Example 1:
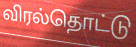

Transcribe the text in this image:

விரல்தொட்டு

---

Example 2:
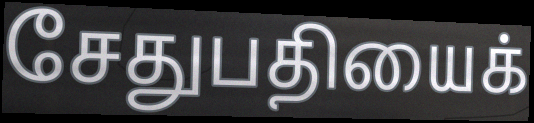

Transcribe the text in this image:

சேதுபதியைக்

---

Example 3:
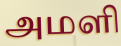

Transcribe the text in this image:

அமளி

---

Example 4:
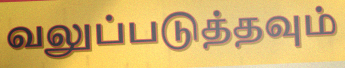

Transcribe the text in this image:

வலுப்படுத்தவும்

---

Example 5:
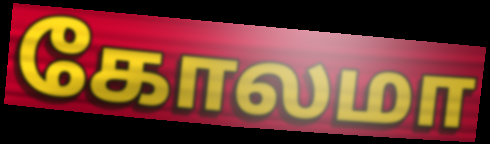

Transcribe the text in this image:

கோலமா